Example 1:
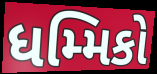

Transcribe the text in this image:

ધમ્મિકો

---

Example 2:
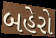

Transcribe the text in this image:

બહેરો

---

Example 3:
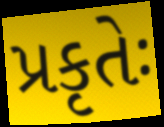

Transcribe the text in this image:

પ્રકૃતેઃ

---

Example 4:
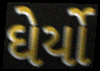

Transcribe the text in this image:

ઘેર્યો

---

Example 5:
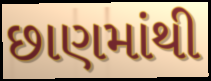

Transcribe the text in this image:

છાણમાંથી